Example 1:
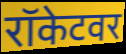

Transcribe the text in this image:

रॉकेटवर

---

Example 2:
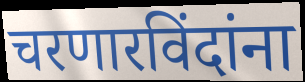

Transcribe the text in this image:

चरणारविंदांना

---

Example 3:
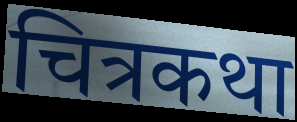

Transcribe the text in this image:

चित्रकथा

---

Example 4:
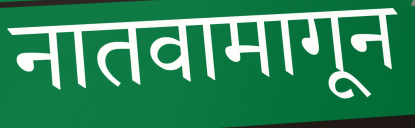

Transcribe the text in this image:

नातवामागून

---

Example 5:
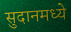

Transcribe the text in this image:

सुदानमध्ये